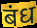
बंध